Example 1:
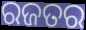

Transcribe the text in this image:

ରଜତର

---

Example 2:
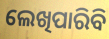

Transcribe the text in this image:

ଲେଖିପାରିବି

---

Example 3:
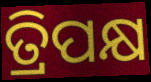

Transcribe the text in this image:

ତ୍ରିପକ୍ଷ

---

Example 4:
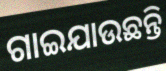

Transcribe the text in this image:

ଗାଇଯାଉଛନ୍ତି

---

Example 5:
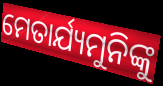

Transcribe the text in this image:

ମେତାର୍ଯ୍ୟମୁନିଙ୍କୁ